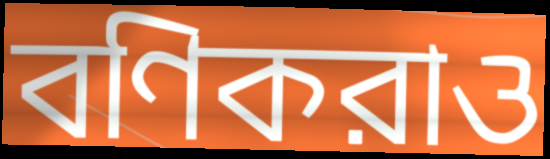
বণিকরাও